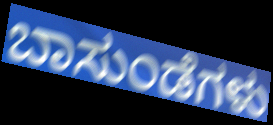
ಬಾಸುಂಡೆಗಳು